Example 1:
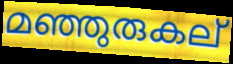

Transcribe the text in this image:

മഞ്ഞുരുകല്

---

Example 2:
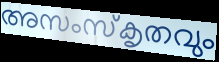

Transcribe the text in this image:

അസംസ്കൃതവും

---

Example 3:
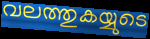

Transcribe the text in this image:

വലത്തുകയ്യുടെ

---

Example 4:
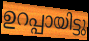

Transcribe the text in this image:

ഉറപ്പായിട്ടു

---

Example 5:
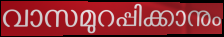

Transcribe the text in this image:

വാസമുറപ്പിക്കാനും